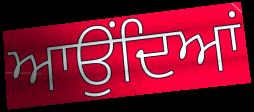
ਆਉਂਦਿਆਂ